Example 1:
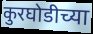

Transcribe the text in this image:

कुरघोडीच्या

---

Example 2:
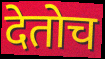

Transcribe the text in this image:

देतोच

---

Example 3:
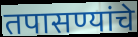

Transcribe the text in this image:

तपासण्यांचे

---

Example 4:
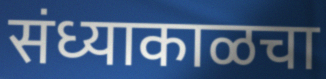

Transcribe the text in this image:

संध्याकाळचा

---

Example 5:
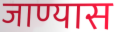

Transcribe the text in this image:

जाण्यास